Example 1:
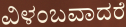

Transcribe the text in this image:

ವಿಳಂಬವಾದರೆ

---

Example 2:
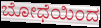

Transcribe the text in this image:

ಬೋಧೆಯಿಂದ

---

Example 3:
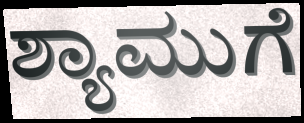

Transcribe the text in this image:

ಶ್ಯಾಮುಗೆ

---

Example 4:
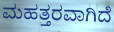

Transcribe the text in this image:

ಮಹತ್ತರವಾಗಿದೆ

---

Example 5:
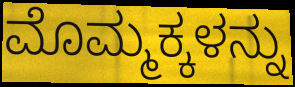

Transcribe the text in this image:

ಮೊಮ್ಮಕ್ಕಳನ್ನು